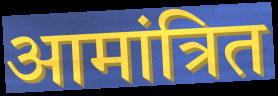
आमांत्रित